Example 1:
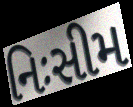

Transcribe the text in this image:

નિઃસીમ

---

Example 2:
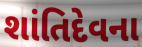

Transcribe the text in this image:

શાંતિદેવના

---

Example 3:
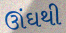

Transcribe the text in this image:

ઊંઘથી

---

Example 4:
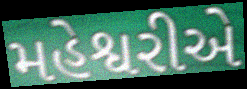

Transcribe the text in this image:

મહેશ્વરીએ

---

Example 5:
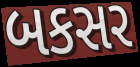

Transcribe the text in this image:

બકસર